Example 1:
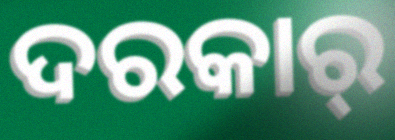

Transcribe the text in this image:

ଦରକାର୍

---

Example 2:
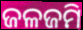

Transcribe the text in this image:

ଜଳଜମି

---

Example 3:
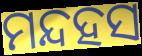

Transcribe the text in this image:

ମନ୍ଦହସ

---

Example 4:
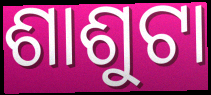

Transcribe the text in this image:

ଶାଶୁଟା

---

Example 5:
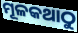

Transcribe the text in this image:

ମୂଳକଥାଠୁ